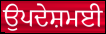
ਉਪਦੇਸ਼ਮਈ